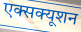
एक्सक्यूशन